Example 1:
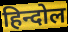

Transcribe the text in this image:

हिन्दोल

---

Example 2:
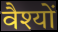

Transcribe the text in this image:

वैश्‍यों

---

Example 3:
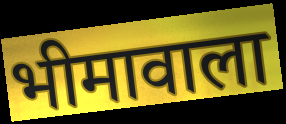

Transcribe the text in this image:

भीमावाला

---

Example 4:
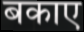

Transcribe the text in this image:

बकाए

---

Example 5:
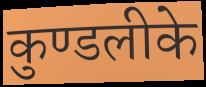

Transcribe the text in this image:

कुण्डलीके